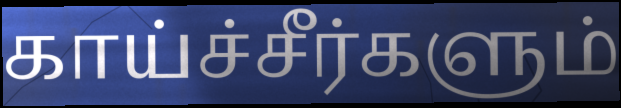
காய்ச்சீர்களும்